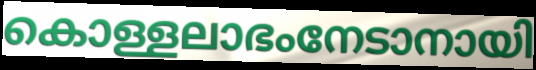
കൊള്ളലാഭംനേടാനായി